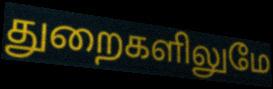
துறைகளிலுமே